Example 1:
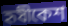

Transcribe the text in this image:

হৃষীকেশ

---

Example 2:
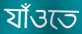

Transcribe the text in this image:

যাঁওতে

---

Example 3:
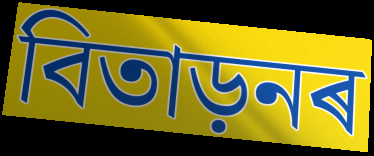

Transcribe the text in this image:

বিতাড়নৰ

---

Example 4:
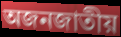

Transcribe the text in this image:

অজনজাতীয়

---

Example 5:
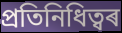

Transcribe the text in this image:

প্ৰতিনিধিত্বৰ